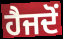
ਹੈਜਦੋਂ